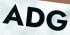
ADG